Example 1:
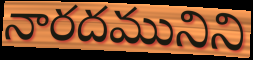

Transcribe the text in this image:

నారదమునిని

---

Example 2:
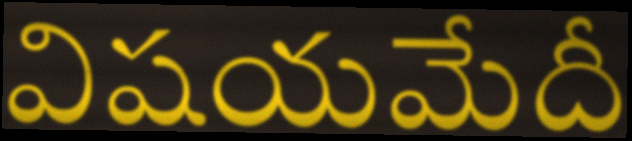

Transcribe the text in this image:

విషయమేదీ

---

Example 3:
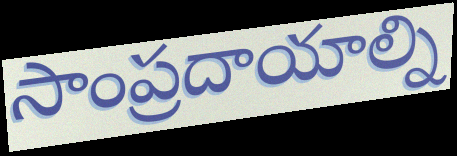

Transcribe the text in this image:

సాంప్రదాయాల్ని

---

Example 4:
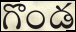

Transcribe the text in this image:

గొండ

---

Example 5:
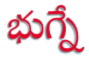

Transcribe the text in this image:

భుగ్నే